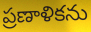
ప్రణాళికను